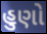
હુણો